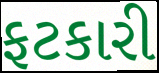
ફટકારી